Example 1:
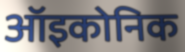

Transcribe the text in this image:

ऑइकोनिक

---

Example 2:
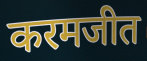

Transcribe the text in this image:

करमजीत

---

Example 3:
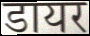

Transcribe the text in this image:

डायर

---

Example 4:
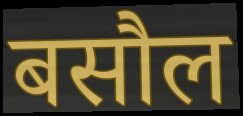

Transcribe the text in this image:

बसौल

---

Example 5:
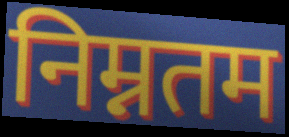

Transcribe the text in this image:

निम्नतम